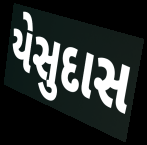
યેસુદાસ